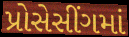
પ્રોસેસીંગમાં